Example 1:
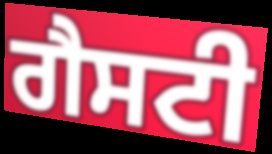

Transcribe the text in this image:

ਗੈਸਟੀ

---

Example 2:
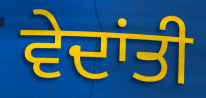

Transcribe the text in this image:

ਵੇਦਾਂਤੀ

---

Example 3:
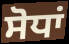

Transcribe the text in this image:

ਸੋਧਾਂ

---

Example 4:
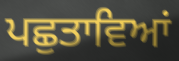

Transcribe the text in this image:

ਪਛੁਤਾਵਿਆਂ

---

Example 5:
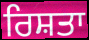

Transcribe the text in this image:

ਰਿਸ਼ਤਾ